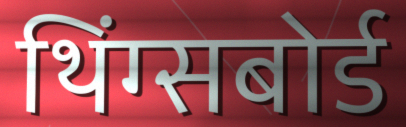
थिंग्सबोर्ड